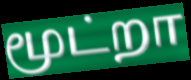
மூட்றா